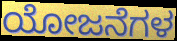
ಯೋಜನೆಗಳ